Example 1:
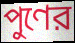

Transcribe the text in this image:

পুণের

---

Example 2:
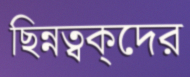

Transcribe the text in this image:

ছিন্নত্বক্দের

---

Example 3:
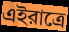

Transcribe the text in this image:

এইরাত্রে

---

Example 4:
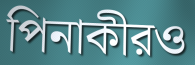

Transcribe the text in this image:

পিনাকীরও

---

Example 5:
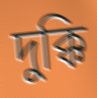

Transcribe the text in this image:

দুক্কি